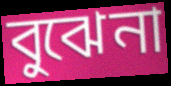
বুঝেনা